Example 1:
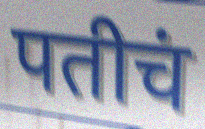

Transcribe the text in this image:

पतीचं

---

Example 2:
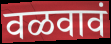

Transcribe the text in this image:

वळवावं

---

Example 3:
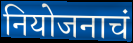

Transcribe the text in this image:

नियोजनाचं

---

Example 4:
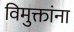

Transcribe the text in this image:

विमुक्तांना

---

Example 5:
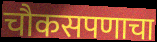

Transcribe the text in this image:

चौकसपणाचा